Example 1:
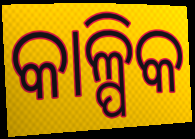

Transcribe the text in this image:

କାଳ୍ପିକ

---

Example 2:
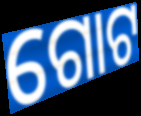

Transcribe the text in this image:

ଗୋଟ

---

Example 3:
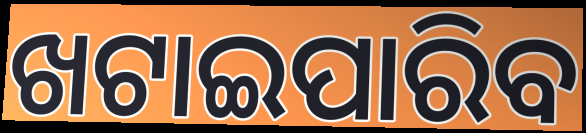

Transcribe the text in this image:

ଖଟାଇପାରିବ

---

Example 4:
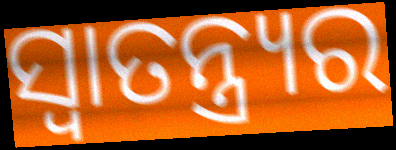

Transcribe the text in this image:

ସ୍ଵାତନ୍ତ୍ର୍ୟର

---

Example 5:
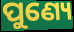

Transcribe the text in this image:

ପୁଣ୍ୟେ